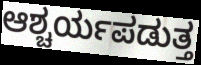
ಆಶ್ಚರ್ಯಪಡುತ್ತ